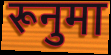
रूनुमा